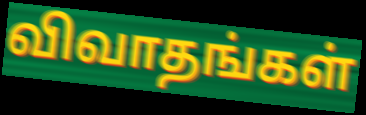
விவாதங்கள்